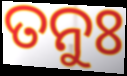
ତନୁଃ